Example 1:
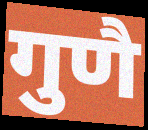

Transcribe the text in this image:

गुणै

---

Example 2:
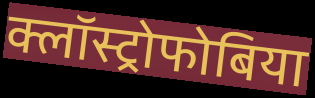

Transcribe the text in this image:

क्लॉस्ट्रोफोबिया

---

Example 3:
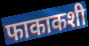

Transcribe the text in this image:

फाकाकशी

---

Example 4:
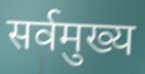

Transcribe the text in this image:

सर्वमुख्य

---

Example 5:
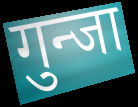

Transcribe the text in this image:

गुन्जा